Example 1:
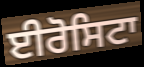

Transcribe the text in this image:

ਈਰੋਸਿਟਾ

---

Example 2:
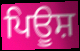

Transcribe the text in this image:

ਪਿਊਸ਼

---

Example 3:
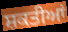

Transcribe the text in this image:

ਸ਼ਕਤੀਆਂ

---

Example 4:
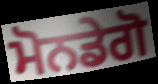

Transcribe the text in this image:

ਮੋਨਡੇਗੋ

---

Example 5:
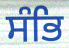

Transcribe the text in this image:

ਸੰਭਿ